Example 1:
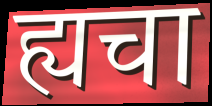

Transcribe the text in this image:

ह्यचा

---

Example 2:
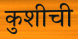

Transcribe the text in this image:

कुशीची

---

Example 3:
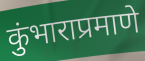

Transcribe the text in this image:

कुंभाराप्रमाणे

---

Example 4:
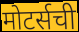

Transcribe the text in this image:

मोटर्सची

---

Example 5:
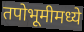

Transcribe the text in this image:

तपोभूमीमध्ये